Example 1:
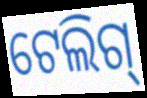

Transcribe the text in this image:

ଟେଲିଗ୍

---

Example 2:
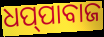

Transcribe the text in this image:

ଧପ୍‌ପାବାଜ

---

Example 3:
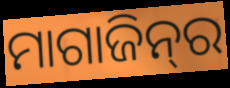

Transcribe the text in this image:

ମାଗାଜିନ୍‍ର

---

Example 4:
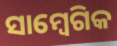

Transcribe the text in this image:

ସାମ୍ବେଗିକ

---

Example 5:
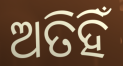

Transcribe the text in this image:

ଅତିହିଁ